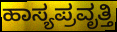
ಹಾಸ್ಯಪ್ರವೃತ್ತಿ